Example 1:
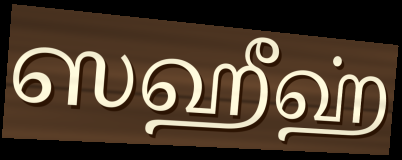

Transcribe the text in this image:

ஸஹீஹ்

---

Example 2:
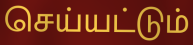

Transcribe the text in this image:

செய்யட்டும்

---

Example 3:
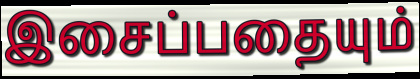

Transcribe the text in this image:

இசைப்பதையும்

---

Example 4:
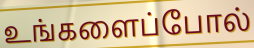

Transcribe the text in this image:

உங்களைப்போல்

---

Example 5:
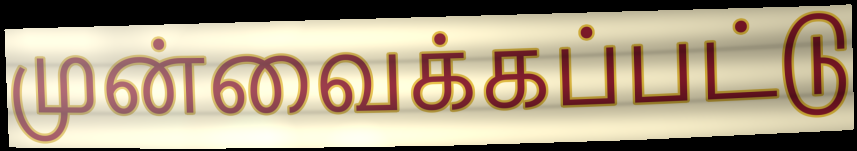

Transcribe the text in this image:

முன்வைக்கப்பட்டு